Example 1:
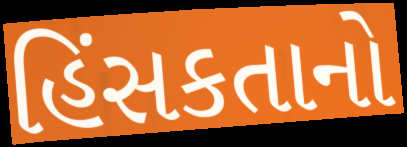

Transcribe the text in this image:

હિંસકતાનો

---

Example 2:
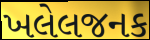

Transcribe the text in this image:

ખલેલજનક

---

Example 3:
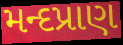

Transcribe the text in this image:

મન્દપ્રાણ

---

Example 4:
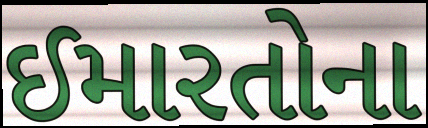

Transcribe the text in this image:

ઈમારતોના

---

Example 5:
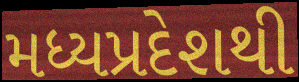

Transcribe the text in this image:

મધ્યપ્રદેશથી